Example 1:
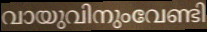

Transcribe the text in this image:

വായുവിനുംവേണ്ടി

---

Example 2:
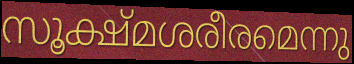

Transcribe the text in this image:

സൂക്ഷ്മശരീരമെന്നു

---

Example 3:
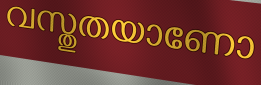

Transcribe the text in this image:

വസ്തുതയാണോ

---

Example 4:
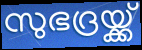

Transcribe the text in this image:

സുഭദ്രയ്ക്ക്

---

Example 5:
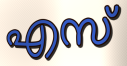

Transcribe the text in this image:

എസ്